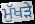
ਮੁੱਖੜੇ